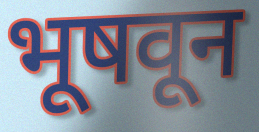
भूषवून